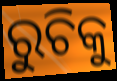
ରୁଚିକୁ